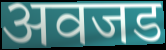
अवजड